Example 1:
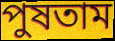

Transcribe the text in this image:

পুষতাম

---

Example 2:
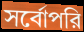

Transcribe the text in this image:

সর্বোপরি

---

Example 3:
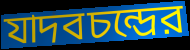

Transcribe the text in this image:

যাদবচন্দ্রের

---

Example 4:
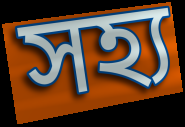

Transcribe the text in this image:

সহ্য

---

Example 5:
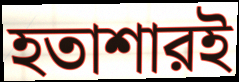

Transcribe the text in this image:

হতাশারই